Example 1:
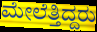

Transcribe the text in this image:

ಮೇಲೆತ್ತಿದ್ದರು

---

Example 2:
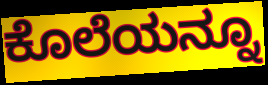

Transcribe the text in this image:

ಕೊಲೆಯನ್ನೂ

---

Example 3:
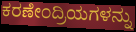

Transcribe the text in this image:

ಕರಣೇಂದ್ರಿಯಗಳನ್ನು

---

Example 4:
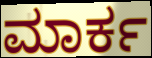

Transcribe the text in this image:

ಮಾರ್ಕ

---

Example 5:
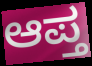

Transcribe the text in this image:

ಆಪ್ತ